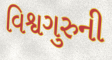
વિશ્વગુરુની